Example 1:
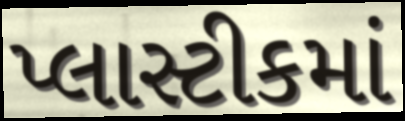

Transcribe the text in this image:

પ્લાસ્ટીકમાં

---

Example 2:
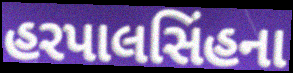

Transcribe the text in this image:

હરપાલસિંહના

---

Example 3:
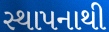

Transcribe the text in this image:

સ્થાપનાથી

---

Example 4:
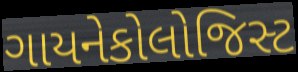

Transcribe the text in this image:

ગાયનેકોલોજિસ્ટ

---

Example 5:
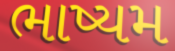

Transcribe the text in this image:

ભાષ્યમ